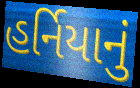
હર્નિયાનું